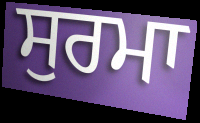
ਸੁਰਮਾ